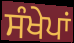
ਸੰਖੇਪਾਂ